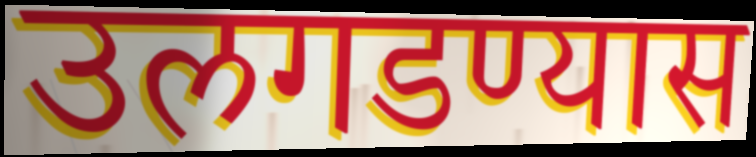
उलगडण्यास